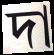
দা